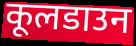
कूलडाउन